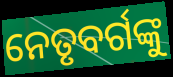
ନେତୃବର୍ଗଙ୍କୁ